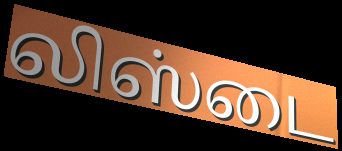
லிஸ்டை